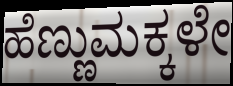
ಹೆಣ್ಣುಮಕ್ಕಳೇ